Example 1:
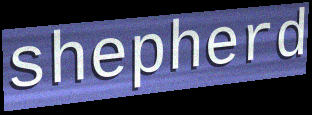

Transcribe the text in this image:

shepherd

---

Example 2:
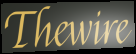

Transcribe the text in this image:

Thewire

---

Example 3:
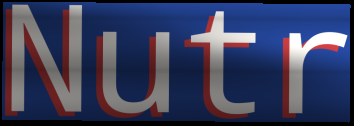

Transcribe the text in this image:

Nutr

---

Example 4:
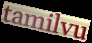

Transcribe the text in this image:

tamilvu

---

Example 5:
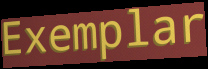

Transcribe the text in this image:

Exemplar